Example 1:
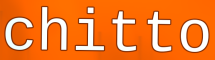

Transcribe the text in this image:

chitto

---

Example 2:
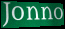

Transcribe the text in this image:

Jonno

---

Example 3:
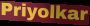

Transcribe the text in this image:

Priyolkar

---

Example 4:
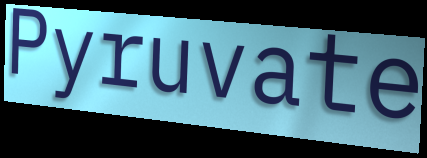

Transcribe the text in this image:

Pyruvate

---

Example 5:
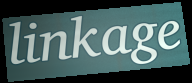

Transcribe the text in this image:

linkage